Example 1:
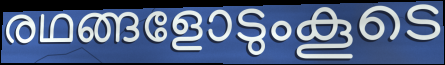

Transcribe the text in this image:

രഥങ്ങളോടുംകൂടെ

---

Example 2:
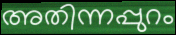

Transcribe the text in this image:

അതിന്നപ്പുറം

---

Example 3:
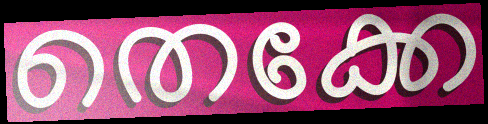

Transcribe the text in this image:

തെക്കേ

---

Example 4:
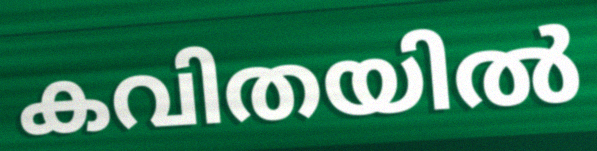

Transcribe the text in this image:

കവിതയിൽ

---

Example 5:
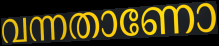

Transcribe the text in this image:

വന്നതാണോ